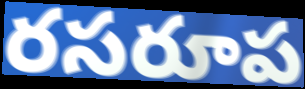
రసరూప